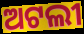
ଅଟଲୀ